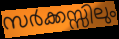
സർക്കസ്സിലും